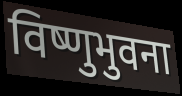
विष्णुभुवना